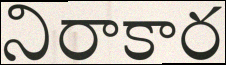
నిరాకార